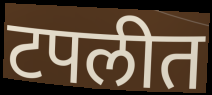
टपलीत